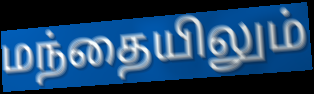
மந்தையிலும்